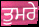
ਤੁਮਰੇ